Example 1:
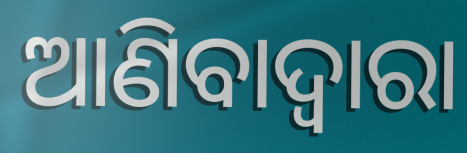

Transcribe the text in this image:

ଆଣିବାଦ୍ୱାରା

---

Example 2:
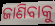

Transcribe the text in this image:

ଜାଣିବାକୁ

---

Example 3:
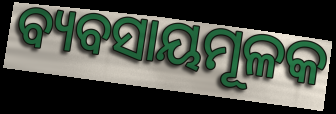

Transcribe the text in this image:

ବ୍ୟବସାୟମୂଳକ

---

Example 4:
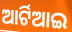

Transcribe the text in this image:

ଆର୍ଟିଆଇ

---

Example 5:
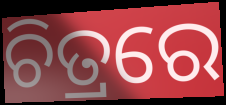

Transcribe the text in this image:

ଚିତ୍ରରେ